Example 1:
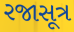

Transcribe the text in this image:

રજાસૂત્ર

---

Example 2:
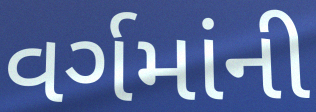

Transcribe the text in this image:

વર્ગમાંની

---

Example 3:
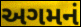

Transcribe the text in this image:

અગમનં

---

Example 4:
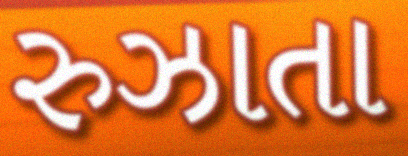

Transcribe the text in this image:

રુઝાતા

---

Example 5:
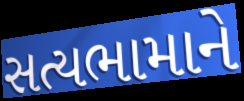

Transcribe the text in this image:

સત્યભામાને